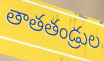
తాతతండ్రుల